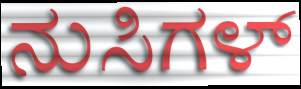
ನುಸಿಗಳ್